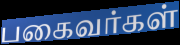
பகைவர்கள்